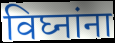
विघ्नांना